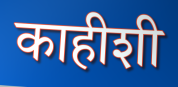
काहीशी